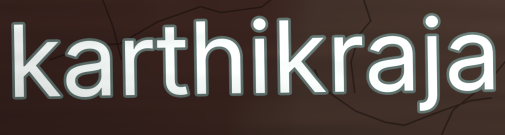
karthikraja